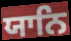
ਯਾਨਿ